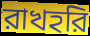
রাখহরি